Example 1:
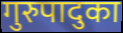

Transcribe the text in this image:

गुरुपादुका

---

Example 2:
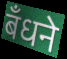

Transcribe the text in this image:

बँधने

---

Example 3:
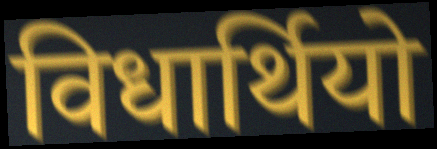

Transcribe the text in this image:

विधार्थियो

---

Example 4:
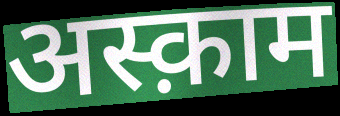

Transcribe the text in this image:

अस्क़ाम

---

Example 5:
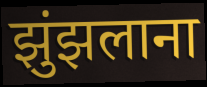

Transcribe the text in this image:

झुंझलाना